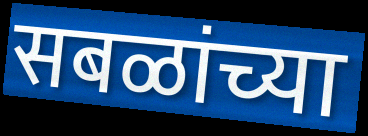
सबळांच्या